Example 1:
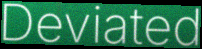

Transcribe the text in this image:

Deviated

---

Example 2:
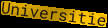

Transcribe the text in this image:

Universitie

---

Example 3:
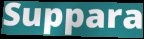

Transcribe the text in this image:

Suppara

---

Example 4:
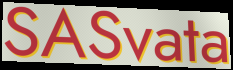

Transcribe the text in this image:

SASvata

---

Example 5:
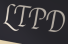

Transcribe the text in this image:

LTPD